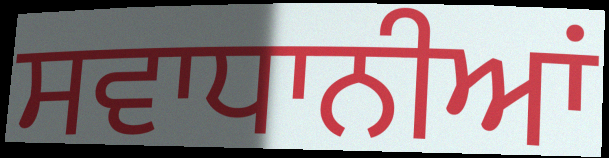
ਸਵਾਧਾਨੀਆਂ